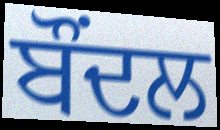
ਬੌਂਦਲ